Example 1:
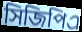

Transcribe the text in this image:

সিজিপিএ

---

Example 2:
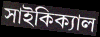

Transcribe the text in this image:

সাইকিক্যাল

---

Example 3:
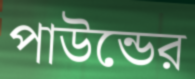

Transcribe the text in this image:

পাউন্ডের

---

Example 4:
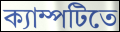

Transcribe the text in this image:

ক্যাম্পটিতে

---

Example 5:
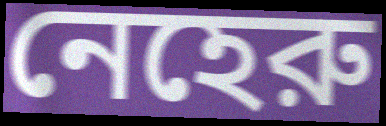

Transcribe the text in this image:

নেহেরু